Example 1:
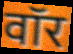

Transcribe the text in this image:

वॉर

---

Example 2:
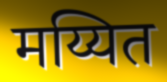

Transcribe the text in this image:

मय्यित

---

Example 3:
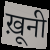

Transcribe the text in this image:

ख़ूनी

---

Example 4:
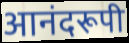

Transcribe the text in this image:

आनंदरूपी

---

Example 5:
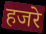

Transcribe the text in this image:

हजरे